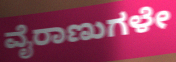
ವೈರಾಣುಗಳೇ